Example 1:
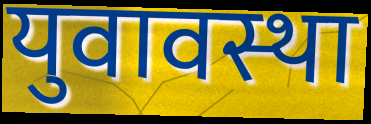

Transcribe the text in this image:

युवावस्था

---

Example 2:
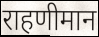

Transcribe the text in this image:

राहणीमान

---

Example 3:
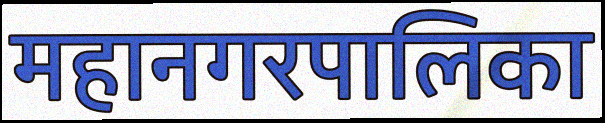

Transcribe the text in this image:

महानगरपालिका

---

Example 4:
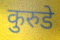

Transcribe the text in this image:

कुरुडे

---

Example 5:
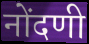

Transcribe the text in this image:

नोंदणी